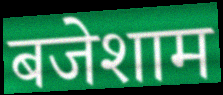
बजेशाम